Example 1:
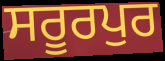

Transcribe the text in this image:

ਸਰੂਰਪੁਰ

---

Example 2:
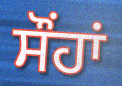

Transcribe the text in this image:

ਸੌਂਹਾਂ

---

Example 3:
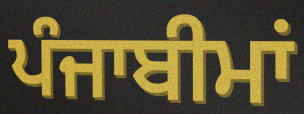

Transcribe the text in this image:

ਪੰਜਾਬੀਮਾਂ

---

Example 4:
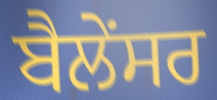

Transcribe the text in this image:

ਬੈਲੇਂਸਰ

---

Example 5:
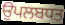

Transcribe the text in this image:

ਉਪਲਬਧਤ